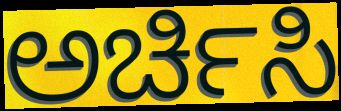
ಅರ್ಚಿಸಿ